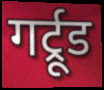
गर्ट्रूड